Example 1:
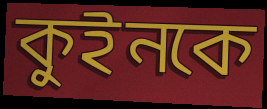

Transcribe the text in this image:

কুইনকে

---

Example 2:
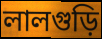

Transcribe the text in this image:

লালগুড়ি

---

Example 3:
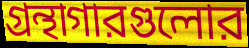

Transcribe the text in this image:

গ্রন্থাগারগুলোর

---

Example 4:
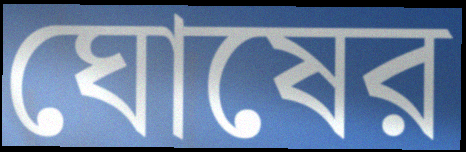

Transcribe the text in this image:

ঘোষের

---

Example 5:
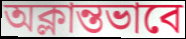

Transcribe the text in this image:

অক্লান্তভাবে